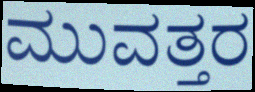
ಮುವತ್ತರ